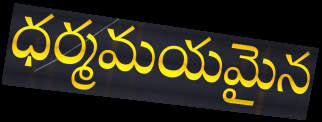
ధర్మమయమైన